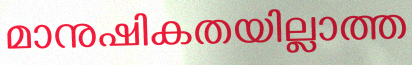
മാനുഷികതയില്ലാത്ത